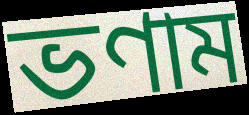
ভণাম